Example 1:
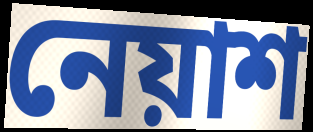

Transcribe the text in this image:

নেয়াশ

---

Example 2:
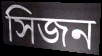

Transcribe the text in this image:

সিজন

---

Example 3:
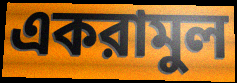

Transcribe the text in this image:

একরামুল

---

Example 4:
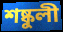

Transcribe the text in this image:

শষ্কুলী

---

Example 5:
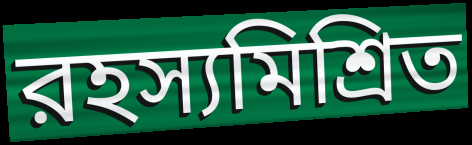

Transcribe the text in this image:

রহস্যমিশ্রিত